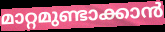
മാറ്റമുണ്ടാക്കാൻ